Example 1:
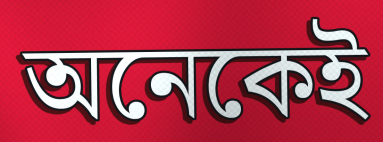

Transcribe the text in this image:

অনেকেই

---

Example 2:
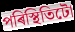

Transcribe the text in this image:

পৰিস্থিতিটো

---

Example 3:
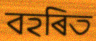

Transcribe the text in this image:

বহৰিত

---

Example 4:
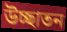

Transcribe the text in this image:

উচ্ছাতন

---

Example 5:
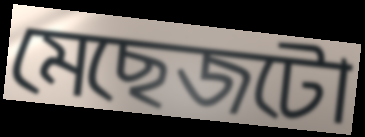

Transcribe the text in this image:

মেছেজটো